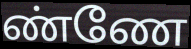
ண்ணே